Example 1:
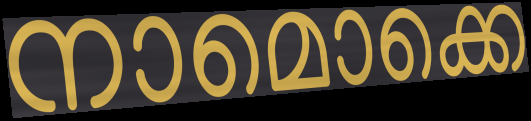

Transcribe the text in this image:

നാമൊക്കെ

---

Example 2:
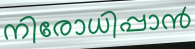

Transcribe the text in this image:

നിരോധിപ്പാൻ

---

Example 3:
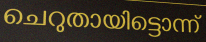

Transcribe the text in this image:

ചെറുതായിട്ടൊന്ന്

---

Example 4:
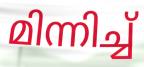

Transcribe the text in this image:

മിന്നിച്ച്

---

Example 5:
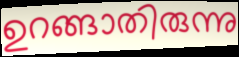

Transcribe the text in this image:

ഉറങ്ങാതിരുന്നു